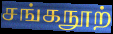
சங்கநூற்